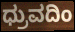
ಧ್ರುವದಿಂ